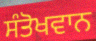
ਸੰਤੋਖਵਾਨ